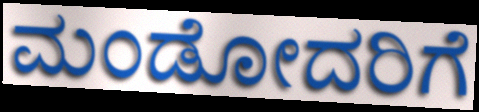
ಮಂಡೋದರಿಗೆ